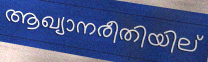
ആഖ്യാനരീതിയില്